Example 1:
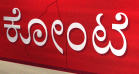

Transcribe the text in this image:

ಕೋಂಟೆ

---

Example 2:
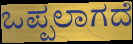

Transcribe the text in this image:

ಒಪ್ಪಲಾಗದೆ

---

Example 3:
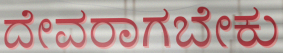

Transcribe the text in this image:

ದೇವರಾಗಬೇಕು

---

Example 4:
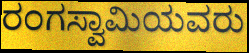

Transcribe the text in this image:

ರಂಗಸ್ವಾಮಿಯವರು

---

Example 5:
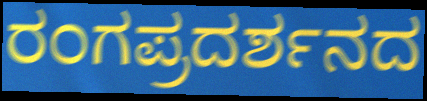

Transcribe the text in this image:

ರಂಗಪ್ರದರ್ಶನದ